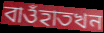
বাওঁহাতখন